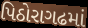
પિઠોરાગઢમાં